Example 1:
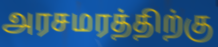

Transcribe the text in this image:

அரசமரத்திற்கு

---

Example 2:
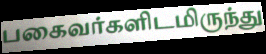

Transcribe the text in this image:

பகைவர்களிடமிருந்து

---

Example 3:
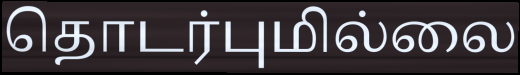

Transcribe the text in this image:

தொடர்புமில்லை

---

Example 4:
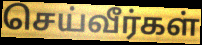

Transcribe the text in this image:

செய்வீர்கள்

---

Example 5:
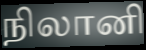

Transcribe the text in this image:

நிலானி